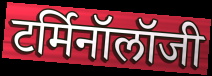
टर्मिनॉलॉजी